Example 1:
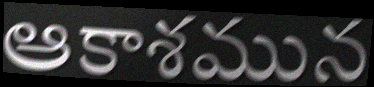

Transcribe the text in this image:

ఆకాశమున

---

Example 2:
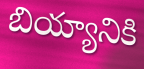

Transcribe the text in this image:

బియ్యానికి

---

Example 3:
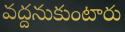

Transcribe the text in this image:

వద్దనుకుంటారు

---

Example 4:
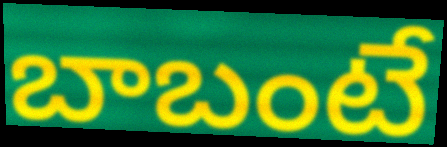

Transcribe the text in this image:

బాబంటే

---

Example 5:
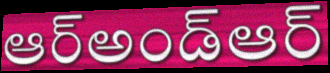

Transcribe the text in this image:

ఆర్అండ్ఆర్